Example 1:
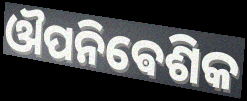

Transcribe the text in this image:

ଔପନିଵେଶିକ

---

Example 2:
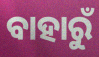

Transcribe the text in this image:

ବାହାରୁଁ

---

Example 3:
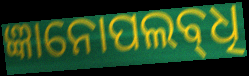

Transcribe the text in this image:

ଜ୍ଞାନୋପଲବ୍‌ଧି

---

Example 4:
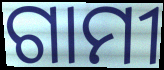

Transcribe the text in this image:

ଗାମୀ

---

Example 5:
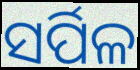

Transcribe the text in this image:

ସର୍ପିଳ